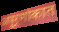
अपूर्णांकात